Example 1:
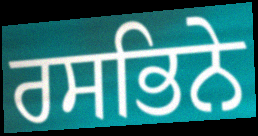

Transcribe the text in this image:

ਰਸਭਿਨੇ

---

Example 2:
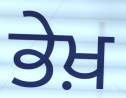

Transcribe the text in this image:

ਭੇਖ਼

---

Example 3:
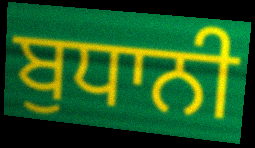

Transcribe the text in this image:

ਬੁਧਾਨੀ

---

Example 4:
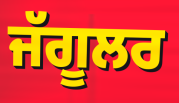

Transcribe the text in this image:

ਜੱਗੂਲਰ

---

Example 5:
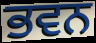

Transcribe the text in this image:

ਭਵਨ